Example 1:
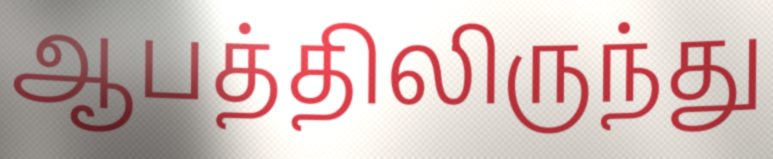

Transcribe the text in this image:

ஆபத்திலிருந்து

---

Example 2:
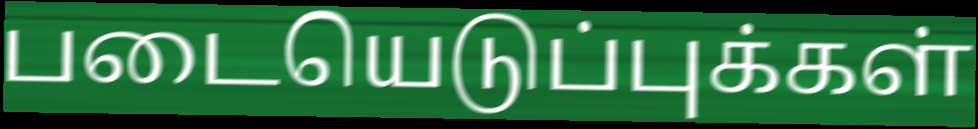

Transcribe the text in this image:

படையெடுப்புக்கள்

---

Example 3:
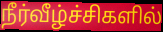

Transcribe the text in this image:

நீர்வீழ்ச்சிகளில்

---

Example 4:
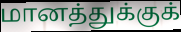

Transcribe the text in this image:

மானத்துக்குக்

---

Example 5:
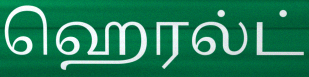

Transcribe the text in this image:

ஹெரல்ட்